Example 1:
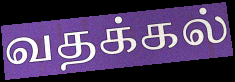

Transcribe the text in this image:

வதக்கல்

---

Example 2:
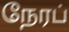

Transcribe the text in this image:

நேரப்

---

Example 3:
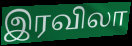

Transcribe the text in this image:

இரவிலா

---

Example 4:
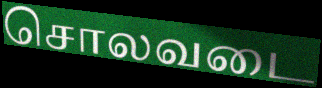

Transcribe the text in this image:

சொலவடை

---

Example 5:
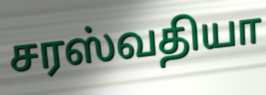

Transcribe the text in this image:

சரஸ்வதியா